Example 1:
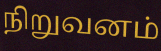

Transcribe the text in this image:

நிறுவனம்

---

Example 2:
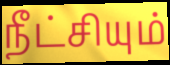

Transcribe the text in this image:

நீட்சியும்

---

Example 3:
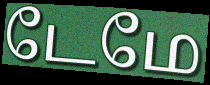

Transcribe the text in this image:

டேமே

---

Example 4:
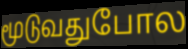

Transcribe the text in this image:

மூடுவதுபோல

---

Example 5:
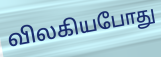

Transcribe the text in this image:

விலகியபோது